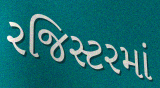
રજિસ્ટરમાં